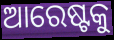
ଆରେଷ୍ଟକୁ